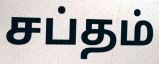
சப்தம்